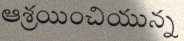
ఆశ్రయించియున్న